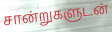
சான்றுகளுடன்